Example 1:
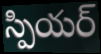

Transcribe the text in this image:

స్పియర్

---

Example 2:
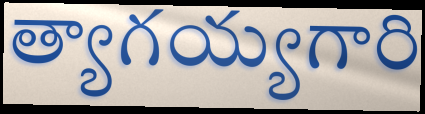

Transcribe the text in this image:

త్యాగయ్యగారి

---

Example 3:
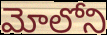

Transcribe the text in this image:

మోలోని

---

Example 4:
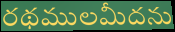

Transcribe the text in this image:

రథములమీదను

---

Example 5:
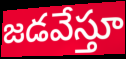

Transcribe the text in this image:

జడవేస్తూ